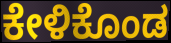
ಕೇಳಿಕೊಂಡ